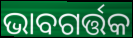
ଭାବଗର୍ତ୍ତକ